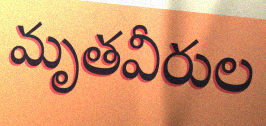
మృతవీరుల